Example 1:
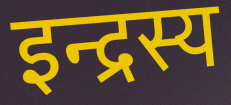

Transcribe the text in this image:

इन्द्रस्य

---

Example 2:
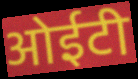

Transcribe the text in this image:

ओईटी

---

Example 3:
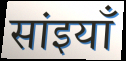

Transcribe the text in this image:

सांइयाँ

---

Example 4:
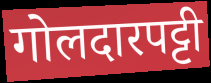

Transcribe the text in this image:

गोलदारपट्टी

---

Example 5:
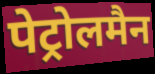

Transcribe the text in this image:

पेट्रोलमैन